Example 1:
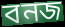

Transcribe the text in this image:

বনজ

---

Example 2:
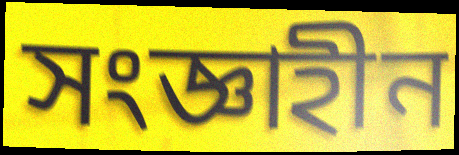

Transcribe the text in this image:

সংজ্ঞাহীন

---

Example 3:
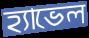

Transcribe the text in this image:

হ্যাভেল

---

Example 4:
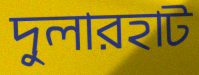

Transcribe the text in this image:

দুলারহাট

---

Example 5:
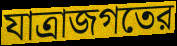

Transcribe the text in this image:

যাত্রাজগতের